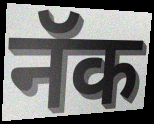
नॅक